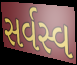
સર્વસ્વ